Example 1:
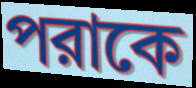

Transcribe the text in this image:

পরাকে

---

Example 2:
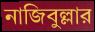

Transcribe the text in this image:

নাজিবুল্লার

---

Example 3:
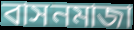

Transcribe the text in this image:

বাসনমাজা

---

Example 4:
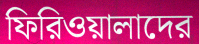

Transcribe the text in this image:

ফিরিওয়ালাদের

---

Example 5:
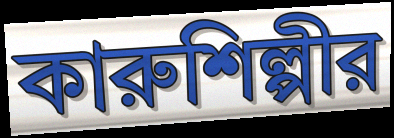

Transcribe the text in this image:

কারুশিল্পীর